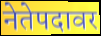
नेतेपदावर